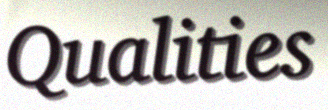
Qualities